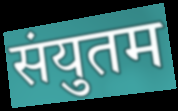
संयुतम